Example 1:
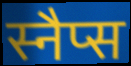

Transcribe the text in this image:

स्नैप्स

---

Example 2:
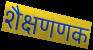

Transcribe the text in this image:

शैक्षणणक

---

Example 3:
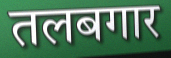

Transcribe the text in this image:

तलबगार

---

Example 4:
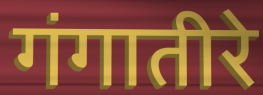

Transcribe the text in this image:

गंगातीरे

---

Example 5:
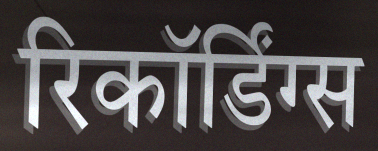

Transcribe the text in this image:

रिकॉर्डिंग्स